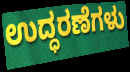
ಉದ್ಧರಣೆಗಳು